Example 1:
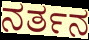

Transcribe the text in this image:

ನರ್ತನ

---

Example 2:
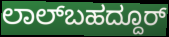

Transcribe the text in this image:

ಲಾಲ್‌ಬಹದ್ದೂರ್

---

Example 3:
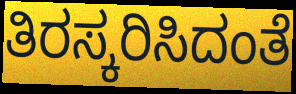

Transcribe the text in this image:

ತಿರಸ್ಕರಿಸಿದಂತೆ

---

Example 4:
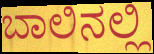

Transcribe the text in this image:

ಬಾಲಿನಲ್ಲಿ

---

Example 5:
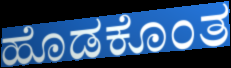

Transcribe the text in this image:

ಹೊಡಕೊಂತ